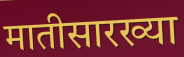
मातीसारख्या